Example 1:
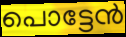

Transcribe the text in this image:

പൊട്ടേൻ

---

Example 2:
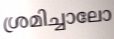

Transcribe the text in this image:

ശ്രമിച്ചാലോ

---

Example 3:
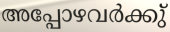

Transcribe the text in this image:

അപ്പോഴവർക്കു്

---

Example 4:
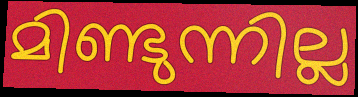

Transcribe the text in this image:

മിണ്ടുന്നില്ല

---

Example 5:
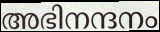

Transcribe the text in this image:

അഭിനന്ദനം